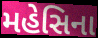
મહેસિના